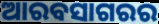
ଆରବସାଗରର